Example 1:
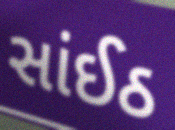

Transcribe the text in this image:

સાંઈઠ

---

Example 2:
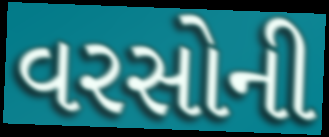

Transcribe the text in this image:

વરસોની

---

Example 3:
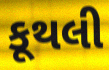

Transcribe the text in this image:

કૂથલી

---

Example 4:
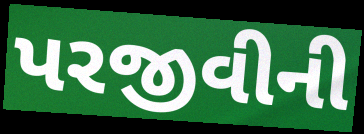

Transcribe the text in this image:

પરજીવીની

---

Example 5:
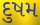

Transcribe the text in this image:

દુષમ